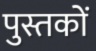
पुस्तकों